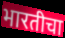
भारतीचा